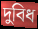
দুবিধ